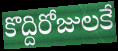
కొద్దిరోజులకే